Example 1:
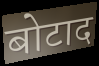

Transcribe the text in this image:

बोटाद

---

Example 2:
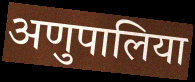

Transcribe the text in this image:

अणुपालिया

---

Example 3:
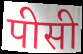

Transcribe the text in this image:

पीसी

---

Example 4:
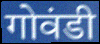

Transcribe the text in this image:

गोवंडी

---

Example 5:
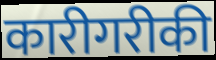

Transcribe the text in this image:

कारीगरीकी